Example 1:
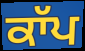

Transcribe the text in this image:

ਕਾੱਪ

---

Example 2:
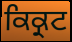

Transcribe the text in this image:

ਕਿਕ੍ਰਟ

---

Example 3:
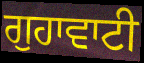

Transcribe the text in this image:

ਗੁਹਾਵਾਟੀ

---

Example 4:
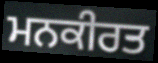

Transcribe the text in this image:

ਮਨਕੀਰਤ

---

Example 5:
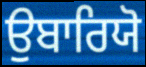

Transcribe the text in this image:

ਉਬਾਰਿਯੋ